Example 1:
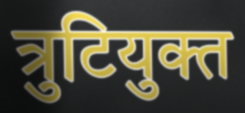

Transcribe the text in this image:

त्रुटियुक्त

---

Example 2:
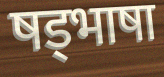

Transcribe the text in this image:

षड्भाषा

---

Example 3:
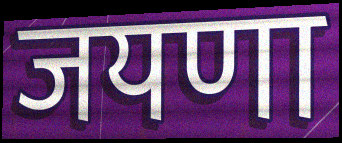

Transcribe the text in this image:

जयणा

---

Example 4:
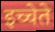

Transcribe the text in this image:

इच्चेते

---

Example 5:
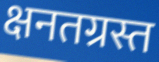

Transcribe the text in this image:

क्षनतग्रस्त